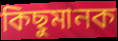
কিছুমানক